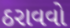
ઠરાવવો